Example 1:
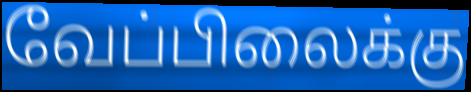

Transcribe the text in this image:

வேப்பிலைக்கு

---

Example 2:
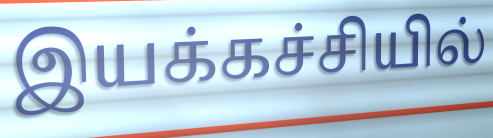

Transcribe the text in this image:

இயக்கச்சியில்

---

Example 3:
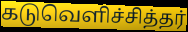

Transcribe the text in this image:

கடுவெளிச்சித்தர்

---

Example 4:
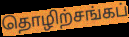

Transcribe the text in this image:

தொழிற்சங்கப்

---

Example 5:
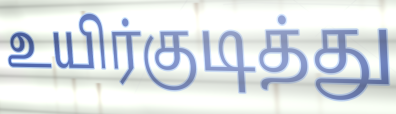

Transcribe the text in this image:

உயிர்குடித்து